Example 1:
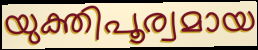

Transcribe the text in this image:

യുക്തിപൂര്വമായ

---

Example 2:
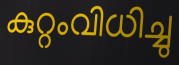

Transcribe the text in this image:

കുറ്റംവിധിച്ചു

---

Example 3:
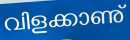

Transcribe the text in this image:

വിളക്കാണു്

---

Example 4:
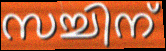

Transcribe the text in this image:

സച്ചിന്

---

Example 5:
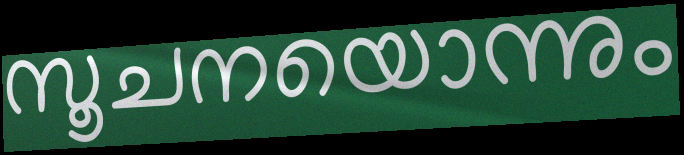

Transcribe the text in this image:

സൂചനയൊന്നും